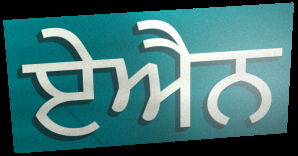
ਏਐਨ